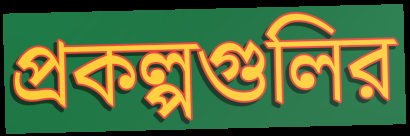
প্রকল্পগুলির